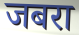
जबरा